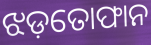
ଝଡ଼ତୋଫାନ